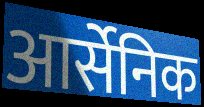
आर्सेनिक